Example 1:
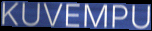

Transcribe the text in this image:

KUVEMPU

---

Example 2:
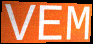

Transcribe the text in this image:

VEM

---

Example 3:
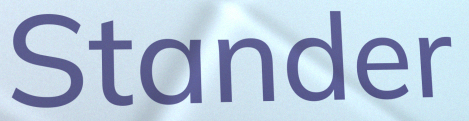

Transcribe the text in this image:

Stander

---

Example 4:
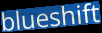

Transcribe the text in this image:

blueshift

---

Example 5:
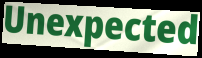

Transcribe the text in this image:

Unexpected